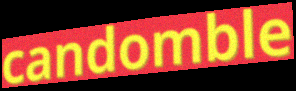
candomble